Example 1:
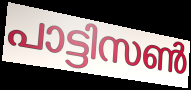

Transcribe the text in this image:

പാട്ടിസൺ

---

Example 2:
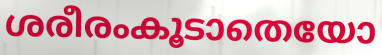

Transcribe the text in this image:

ശരീരംകൂടാതെയോ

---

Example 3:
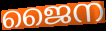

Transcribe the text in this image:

ജൈന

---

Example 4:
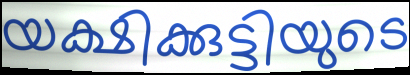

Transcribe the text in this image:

യക്ഷിക്കുട്ടിയുടെ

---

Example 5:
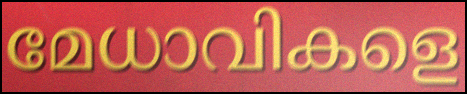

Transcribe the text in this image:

മേധാവികളെ